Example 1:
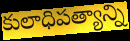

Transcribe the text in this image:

కులాధిపత్యాన్ని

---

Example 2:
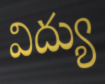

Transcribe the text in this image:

విద్యు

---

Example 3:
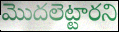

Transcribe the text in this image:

మొదలెట్టారని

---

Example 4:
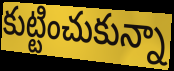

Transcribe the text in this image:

కుట్టించుకున్నా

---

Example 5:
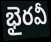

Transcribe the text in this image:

భైరవీ